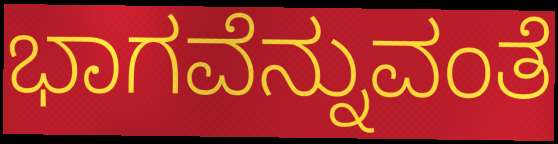
ಭಾಗವೆನ್ನುವಂತೆ